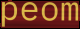
peom